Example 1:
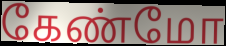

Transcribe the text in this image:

கேண்மோ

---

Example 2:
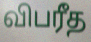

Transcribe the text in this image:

விபரீத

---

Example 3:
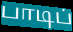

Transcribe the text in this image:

பாடிப்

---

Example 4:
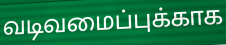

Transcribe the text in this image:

வடிவமைப்புக்காக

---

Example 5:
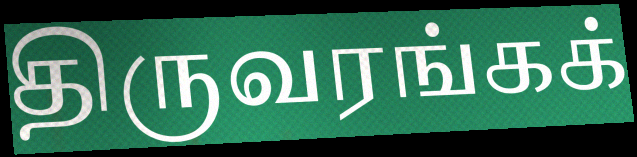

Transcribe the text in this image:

திருவரங்கக்